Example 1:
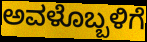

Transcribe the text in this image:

ಅವಳೊಬ್ಬಳಿಗೆ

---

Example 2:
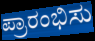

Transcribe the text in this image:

ಪ್ರಾರಂಭಿಸು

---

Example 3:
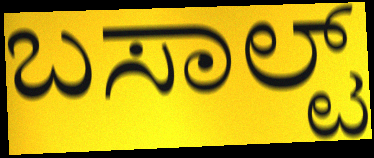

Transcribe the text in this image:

ಬಸಾಲ್ಟ್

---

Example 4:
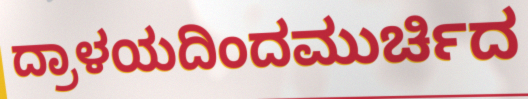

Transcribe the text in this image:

ದ್ರಾಳಯದಿಂದಮುರ್ಚಿದ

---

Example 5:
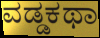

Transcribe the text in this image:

ವಡ್ಡಕಥಾ